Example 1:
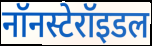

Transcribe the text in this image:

नॉनस्टेरॉइडल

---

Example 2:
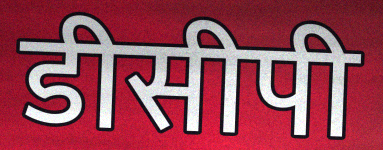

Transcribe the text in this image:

डीसीपी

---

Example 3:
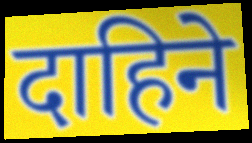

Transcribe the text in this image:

दाहिने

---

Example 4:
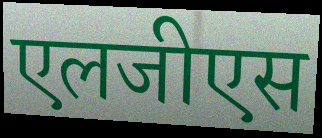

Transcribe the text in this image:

एलजीएस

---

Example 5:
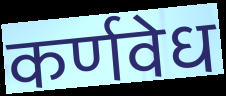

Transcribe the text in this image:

कर्णवेध